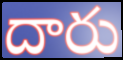
దారు